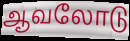
ஆவலோடு